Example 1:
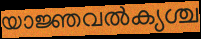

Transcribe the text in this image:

യാജ്ഞവൽക്യശ്ച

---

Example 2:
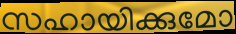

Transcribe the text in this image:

സഹായിക്കുമോ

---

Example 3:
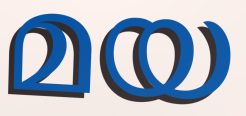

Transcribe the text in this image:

മയ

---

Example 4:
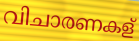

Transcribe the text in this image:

വിചാരണകള്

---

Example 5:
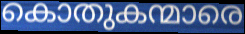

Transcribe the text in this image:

കൊതുകന്മാരെ